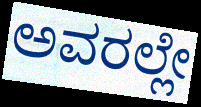
ಅವರಲ್ಲೇ